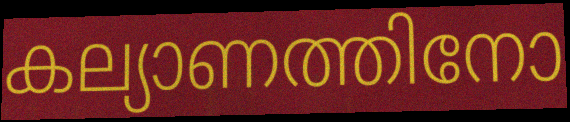
കല്യാണത്തിനോ